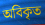
অবিকৃত